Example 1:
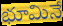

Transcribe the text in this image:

భూమినే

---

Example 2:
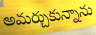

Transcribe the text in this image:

అమర్చుకున్నాను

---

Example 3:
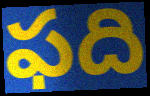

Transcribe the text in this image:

ఫది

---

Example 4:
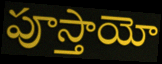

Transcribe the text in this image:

పూస్తాయో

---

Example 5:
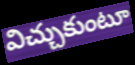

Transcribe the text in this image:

విచ్చుకుంటూ